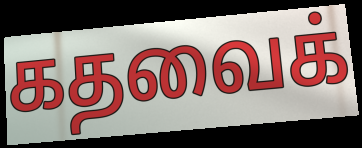
கதவைக்